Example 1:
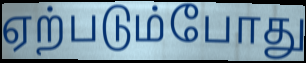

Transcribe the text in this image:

ஏற்படும்போது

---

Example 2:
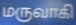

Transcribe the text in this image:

மருவாகி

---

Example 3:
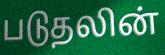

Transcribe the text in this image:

படுதலின்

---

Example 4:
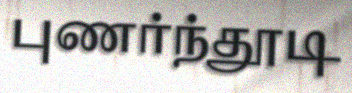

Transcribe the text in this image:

புணர்ந்தூடி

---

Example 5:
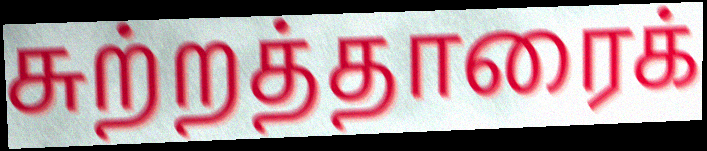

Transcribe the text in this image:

சுற்றத்தாரைக்